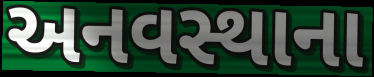
અનવસ્થાના